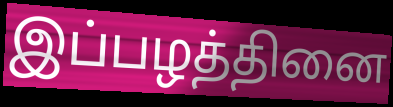
இப்பழத்தினை